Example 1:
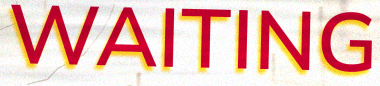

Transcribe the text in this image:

WAITING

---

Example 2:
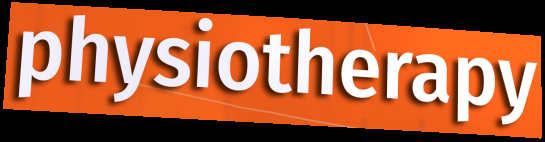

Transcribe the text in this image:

physiotherapy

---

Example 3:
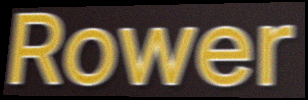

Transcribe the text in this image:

Rower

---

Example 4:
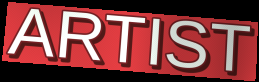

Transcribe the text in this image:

ARTIST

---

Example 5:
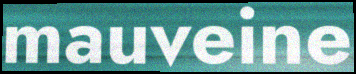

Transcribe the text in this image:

mauveine